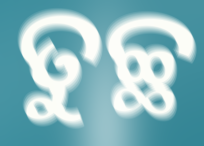
ତୁଚ୍ଛ